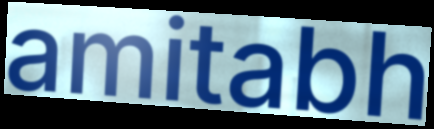
amitabh